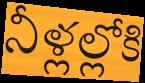
నీళ్లల్లోకి